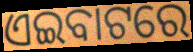
ଏଇବାଟରେ